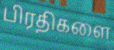
பிரதிகளை